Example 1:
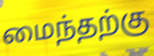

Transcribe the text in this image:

மைந்தற்கு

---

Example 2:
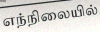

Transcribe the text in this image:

எந்நிலையில்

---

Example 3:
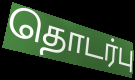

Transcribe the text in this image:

தொடர்பு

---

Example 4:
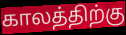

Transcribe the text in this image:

காலத்திற்கு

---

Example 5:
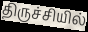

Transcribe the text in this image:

திருச்சியில்